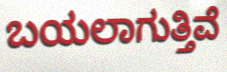
ಬಯಲಾಗುತ್ತಿವೆ